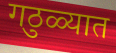
गठुळ्यात